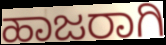
ಹಾಜರಾಗಿ